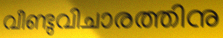
വീണ്ടുവിചാരത്തിനു